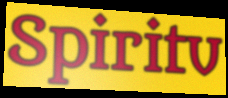
Spiritu